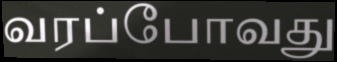
வரப்போவது